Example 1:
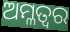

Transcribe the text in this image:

ଅମ୍ଳତ୍ଵର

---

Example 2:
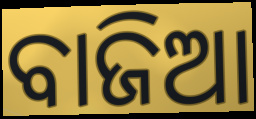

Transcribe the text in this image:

ବାଜିଆ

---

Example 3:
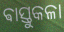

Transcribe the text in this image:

ଵାସ୍ତୁକଳା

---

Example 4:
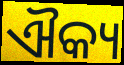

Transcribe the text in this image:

ଐକ୍ୟ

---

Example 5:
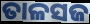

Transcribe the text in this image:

ତାଳସଜ